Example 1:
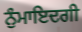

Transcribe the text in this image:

ਨੁੰਮਾਇਦਗੀ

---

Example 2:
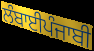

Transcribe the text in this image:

ਲੰਬਾਈਪੰਜਾਬੀ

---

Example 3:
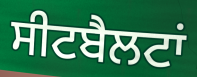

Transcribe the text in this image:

ਸੀਟਬੈਲਟਾਂ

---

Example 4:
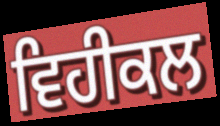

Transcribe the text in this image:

ਵਿਹੀਕਲ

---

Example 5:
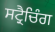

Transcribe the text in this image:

ਸਟ੍ਰੈਚਿੰਗ